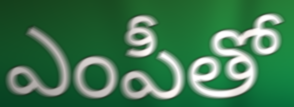
ఎంపీతో